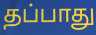
தப்பாது